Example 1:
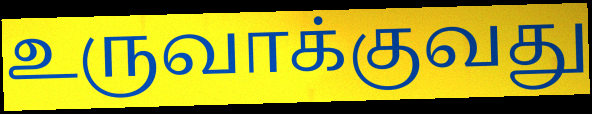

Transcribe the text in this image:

உருவாக்குவது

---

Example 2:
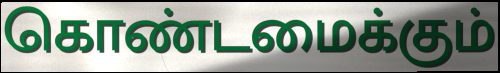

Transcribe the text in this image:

கொண்டமைக்கும்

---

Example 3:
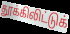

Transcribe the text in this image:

தூக்கிலிட்டுக்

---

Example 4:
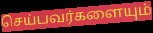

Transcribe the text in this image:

செய்பவர்களையும்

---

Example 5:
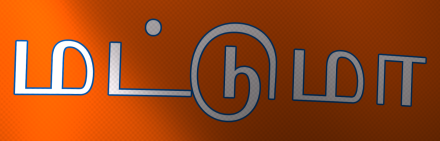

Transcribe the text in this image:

மட்டுமா